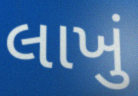
લાખું